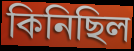
কিনিছিল